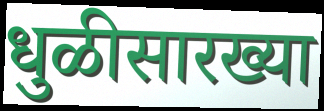
धुळीसारख्या